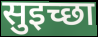
सुइच्छा